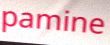
pamine